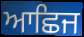
ਆਛਿਜ